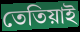
তেতিয়াই